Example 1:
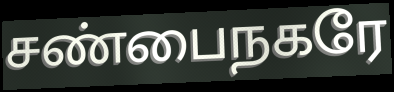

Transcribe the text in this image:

சண்பைநகரே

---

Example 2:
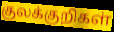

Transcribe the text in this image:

குலக்குறிகள்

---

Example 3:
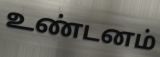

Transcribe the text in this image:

உண்டனம்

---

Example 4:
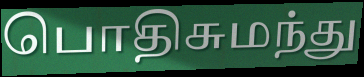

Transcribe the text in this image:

பொதிசுமந்து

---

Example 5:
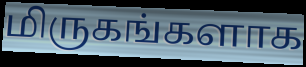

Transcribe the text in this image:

மிருகங்களாக